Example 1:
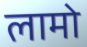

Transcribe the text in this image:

लामो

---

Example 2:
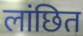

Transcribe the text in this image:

लांछित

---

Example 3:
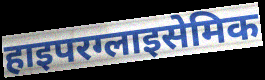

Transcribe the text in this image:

हाइपरग्लाइसेमिक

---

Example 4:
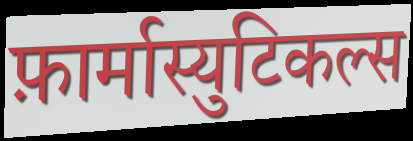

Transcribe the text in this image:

फ़ार्मास्युटिकल्स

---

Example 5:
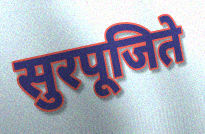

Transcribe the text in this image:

सुरपूजिते